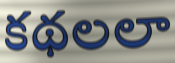
కథలలా